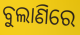
ବୁଲାଣିରେ